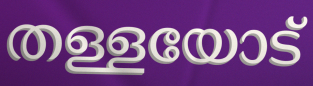
തള്ളയോട്